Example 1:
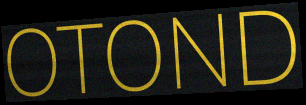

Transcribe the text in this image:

OTOND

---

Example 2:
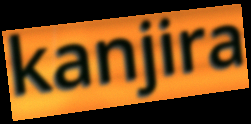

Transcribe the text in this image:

kanjira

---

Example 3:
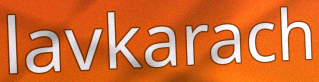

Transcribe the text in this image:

lavkarach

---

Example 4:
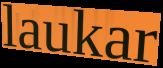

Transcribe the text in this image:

laukar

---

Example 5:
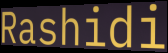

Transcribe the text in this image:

Rashidi